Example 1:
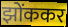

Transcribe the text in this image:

झोंककर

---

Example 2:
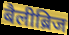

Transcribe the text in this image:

बैलीब्रिज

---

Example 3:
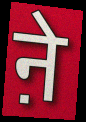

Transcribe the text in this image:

ऩे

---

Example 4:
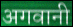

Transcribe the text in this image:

अगवानी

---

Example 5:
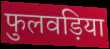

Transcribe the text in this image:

फुलवड़िया